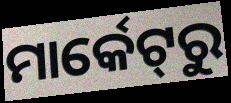
ମାର୍କେଟ୍‌ରୁ